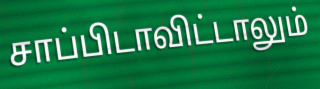
சாப்பிடாவிட்டாலும்